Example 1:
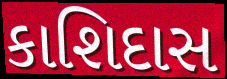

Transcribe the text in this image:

કાશિદાસ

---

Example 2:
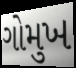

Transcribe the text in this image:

ગોમુખ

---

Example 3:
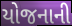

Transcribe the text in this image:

યોજનાની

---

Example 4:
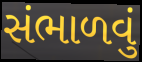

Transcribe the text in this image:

સંભાળવું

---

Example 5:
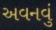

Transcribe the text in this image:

અવનવું